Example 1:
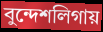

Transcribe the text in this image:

বুন্দেশলিগায়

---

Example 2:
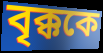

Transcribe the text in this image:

বৃক্ককে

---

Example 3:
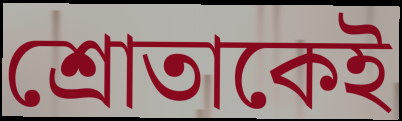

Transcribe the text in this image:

শ্রোতাকেই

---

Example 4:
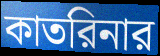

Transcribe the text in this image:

কাতরিনার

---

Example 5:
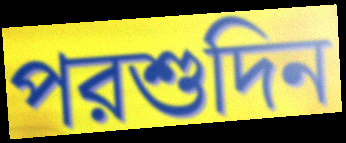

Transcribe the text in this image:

পরশুদিন